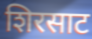
शिरसाट